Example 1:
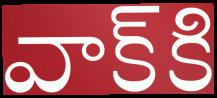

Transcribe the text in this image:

వాక్‌కి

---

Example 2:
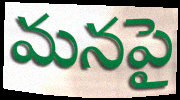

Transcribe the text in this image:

మనపై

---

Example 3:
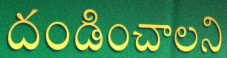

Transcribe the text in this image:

దండించాలని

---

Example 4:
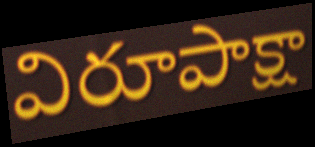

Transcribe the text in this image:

విరూపాక్షా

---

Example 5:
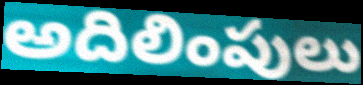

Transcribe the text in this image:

అదిలింపులు